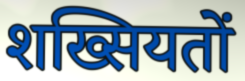
शख्सियतों